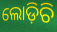
ଲୋଡ଼ିଚି